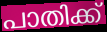
പാതിക്ക്